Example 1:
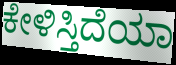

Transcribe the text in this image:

ಕೇಳಿಸ್ತಿದೆಯಾ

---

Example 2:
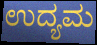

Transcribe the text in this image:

ಉದ್ಯಮ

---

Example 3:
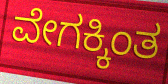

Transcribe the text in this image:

ವೇಗಕ್ಕಿಂತ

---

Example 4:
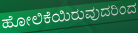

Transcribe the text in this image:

ಹೋಲಿಕೆಯಿರುವುದರಿಂದ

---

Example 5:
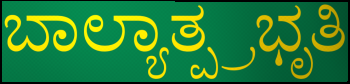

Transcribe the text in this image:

ಬಾಲ್ಯಾತ್ಪ್ರಭೃತಿ